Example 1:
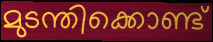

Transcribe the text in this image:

മുടന്തിക്കൊണ്ട്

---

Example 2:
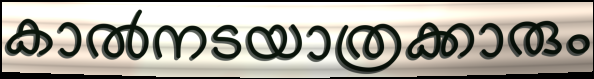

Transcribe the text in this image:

കാൽനടയാത്രക്കാരും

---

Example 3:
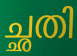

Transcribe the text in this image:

ച്ഛതി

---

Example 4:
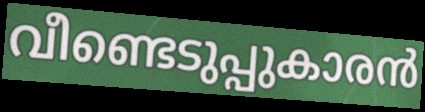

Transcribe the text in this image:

വീണ്ടെടുപ്പുകാരൻ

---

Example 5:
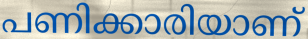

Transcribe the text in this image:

പണിക്കാരിയാണ്